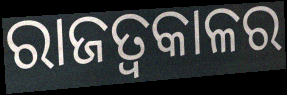
ରାଜତ୍ୱକାଳର